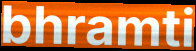
bhramti